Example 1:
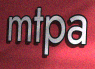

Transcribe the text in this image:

mtpa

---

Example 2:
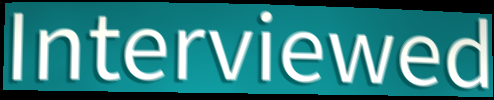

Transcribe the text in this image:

Interviewed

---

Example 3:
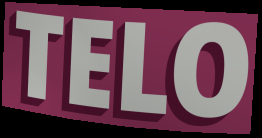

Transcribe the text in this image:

TELO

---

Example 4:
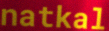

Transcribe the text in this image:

natkal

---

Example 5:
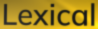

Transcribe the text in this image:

Lexical